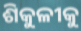
ଶିକୁଳୀକୁ